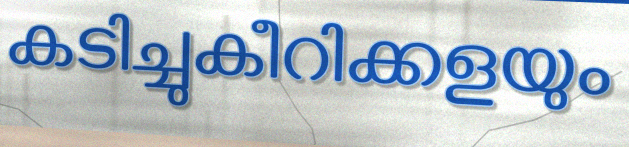
കടിച്ചുകീറിക്കളയും